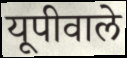
यूपीवाले